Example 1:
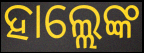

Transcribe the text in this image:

ହାଲ୍ଲେଙ୍କ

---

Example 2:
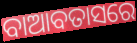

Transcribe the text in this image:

ବାଆବତାସରେ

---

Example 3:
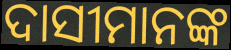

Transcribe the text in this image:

ଦାସୀମାନଙ୍କ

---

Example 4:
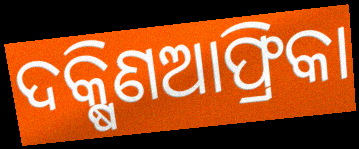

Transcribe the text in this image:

ଦକ୍ଷିଣଆଫ୍ରିକା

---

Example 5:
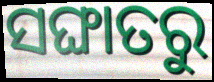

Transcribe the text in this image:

ସଙ୍ଘାତରୁ